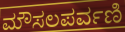
ಮೌಸಲಪರ್ವಣಿ